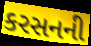
કરસનની